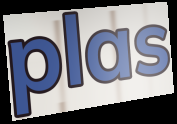
plas